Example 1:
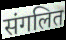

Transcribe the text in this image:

संगलित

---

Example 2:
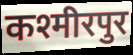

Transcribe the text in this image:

कश्मीरपुर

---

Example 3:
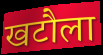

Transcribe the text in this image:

खटौला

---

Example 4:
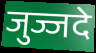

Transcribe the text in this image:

जुज्जदे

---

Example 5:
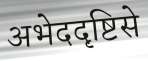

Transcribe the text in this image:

अभेददृष्टिसे